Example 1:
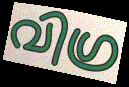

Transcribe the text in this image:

വിഗ്ര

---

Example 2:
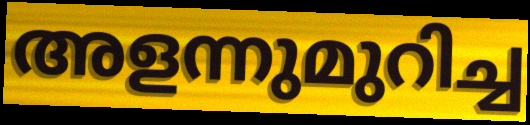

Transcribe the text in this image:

അളന്നുമുറിച്ച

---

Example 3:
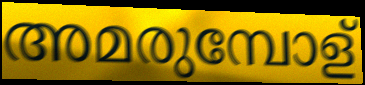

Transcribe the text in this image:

അമരുമ്പോള്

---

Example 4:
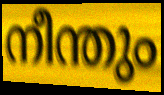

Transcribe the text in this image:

നീന്തും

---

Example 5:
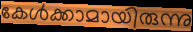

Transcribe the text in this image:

കേൾക്കാമായിരുന്നു